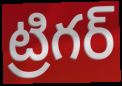
ట్రిగర్